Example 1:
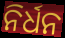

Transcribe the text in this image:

ନିର୍ଧନ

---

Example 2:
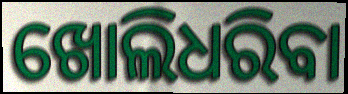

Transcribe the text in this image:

ଖୋଲିଧରିବା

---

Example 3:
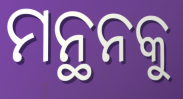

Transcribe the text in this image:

ମନ୍ଥନକୁ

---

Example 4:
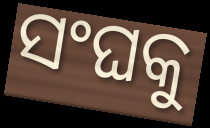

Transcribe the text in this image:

ସଂଘକୁ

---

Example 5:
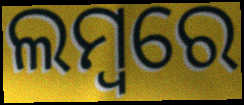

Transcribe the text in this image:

ଲମ୍ବରେ